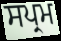
ਸਪ੍ਰਮ